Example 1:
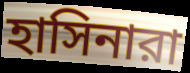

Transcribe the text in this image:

হাসিনারা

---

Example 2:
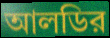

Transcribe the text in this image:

আলডির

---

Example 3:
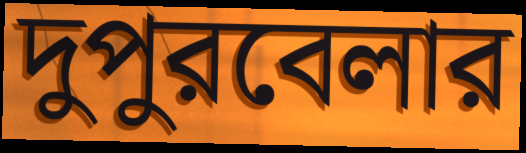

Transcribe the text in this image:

দুপুরবেলার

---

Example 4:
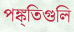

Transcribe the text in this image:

পঙ্ক্তিগুলি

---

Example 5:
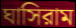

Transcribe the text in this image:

ঘাসিরাম